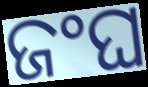
ଜଂଘ